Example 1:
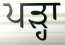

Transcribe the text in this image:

ਪੜ੍ਹਾ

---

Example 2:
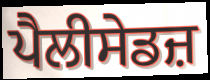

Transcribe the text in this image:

ਪੈਲੀਸੇਡਜ਼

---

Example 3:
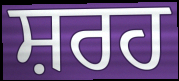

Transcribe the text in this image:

ਸ਼ਰਹ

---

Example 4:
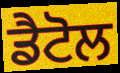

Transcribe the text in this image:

ਡੈਟੋਲ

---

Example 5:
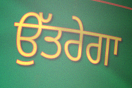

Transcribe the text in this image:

ਉੱਤਰੇਗਾ